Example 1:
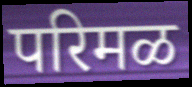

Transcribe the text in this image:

परिमळ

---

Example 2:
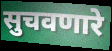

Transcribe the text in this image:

सुचवणारे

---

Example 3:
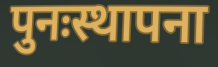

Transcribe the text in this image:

पुनःस्थापना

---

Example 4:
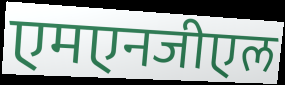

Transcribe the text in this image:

एमएनजीएल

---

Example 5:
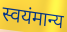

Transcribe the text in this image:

स्वयंमान्य